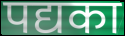
पद्यका